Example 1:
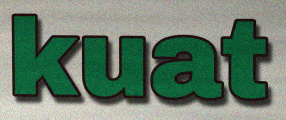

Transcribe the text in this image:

kuat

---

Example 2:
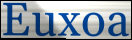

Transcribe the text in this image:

Euxoa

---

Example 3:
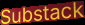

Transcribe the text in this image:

Substack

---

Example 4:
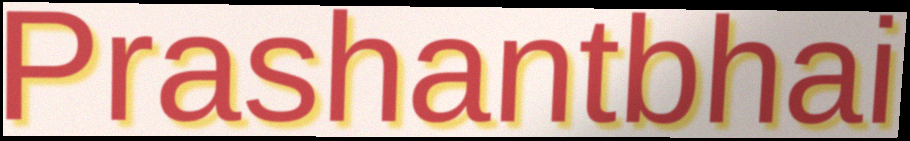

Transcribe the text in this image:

Prashantbhai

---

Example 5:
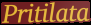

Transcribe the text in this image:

Pritilata